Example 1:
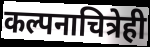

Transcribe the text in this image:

कल्पनाचित्रेही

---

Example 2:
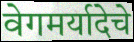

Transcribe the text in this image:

वेगमर्यादेचे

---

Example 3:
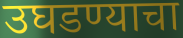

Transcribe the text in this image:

उघडण्याचा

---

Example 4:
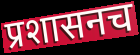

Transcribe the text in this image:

प्रशासनच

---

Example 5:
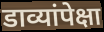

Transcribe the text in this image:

डाव्यांपेक्षा